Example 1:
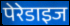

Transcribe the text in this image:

पेरेडाइज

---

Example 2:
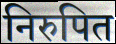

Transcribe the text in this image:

निरुपित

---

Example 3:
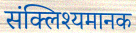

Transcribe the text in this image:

संक्लिश्यमानक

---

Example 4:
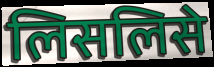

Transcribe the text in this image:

लिसलिसे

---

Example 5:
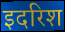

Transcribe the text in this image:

इदरिश